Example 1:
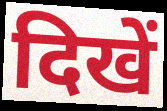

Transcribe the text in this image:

दिखें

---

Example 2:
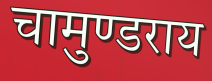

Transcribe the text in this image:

चामुण्डराय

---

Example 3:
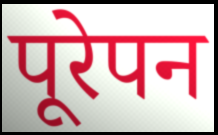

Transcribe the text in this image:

पूरेपन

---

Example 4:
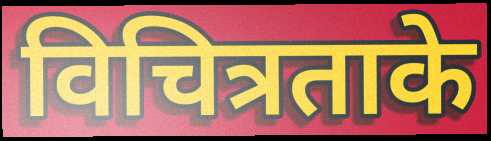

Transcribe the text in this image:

विचित्रताके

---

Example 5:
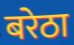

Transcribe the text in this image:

बरेठा